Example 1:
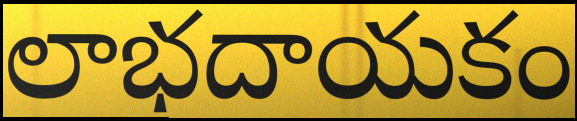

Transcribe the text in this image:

లాభదాయకం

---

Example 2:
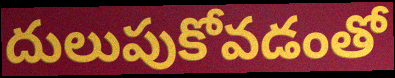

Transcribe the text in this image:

దులుపుకోవడంతో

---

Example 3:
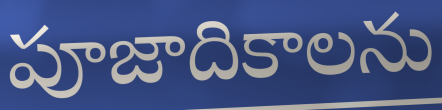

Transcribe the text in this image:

పూజాదికాలను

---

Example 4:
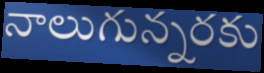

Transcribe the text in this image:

నాలుగున్నరకు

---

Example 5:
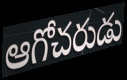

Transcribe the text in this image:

ఆగోచరుడు